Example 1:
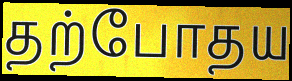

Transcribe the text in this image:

தற்போதய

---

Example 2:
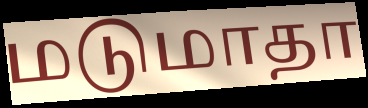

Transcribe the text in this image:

மடுமாதா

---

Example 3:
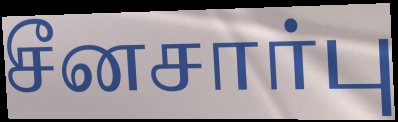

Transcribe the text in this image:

சீனசார்பு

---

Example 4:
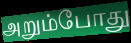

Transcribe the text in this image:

அறும்போது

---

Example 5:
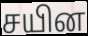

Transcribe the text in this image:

சயின